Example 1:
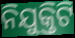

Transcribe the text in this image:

ନିଯୁକ୍ତିଟି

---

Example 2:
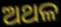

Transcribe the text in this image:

ଅଥଳ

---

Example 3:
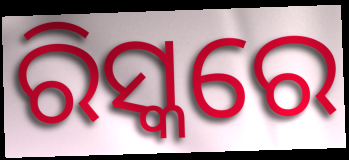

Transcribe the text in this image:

ରିସ୍କରେ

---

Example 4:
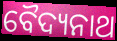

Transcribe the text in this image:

ବୈଦ୍ୟନାଥ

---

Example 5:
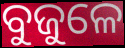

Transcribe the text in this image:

ବୁଜୁଳେ